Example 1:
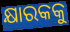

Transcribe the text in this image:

କ୍ଷାରକକୁ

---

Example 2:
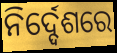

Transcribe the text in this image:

ନିର୍ଦ୍ଦେଶରେ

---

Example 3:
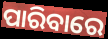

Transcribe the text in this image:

ପାରିବାରେ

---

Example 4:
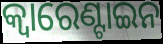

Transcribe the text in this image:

କ୍ୱାରେଣ୍ଟାଇନ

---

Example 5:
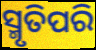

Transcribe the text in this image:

ସ୍ମୃତିପରି